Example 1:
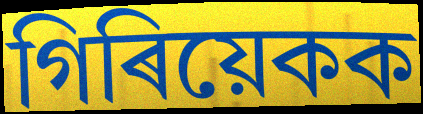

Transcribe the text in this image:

গিৰিয়েকক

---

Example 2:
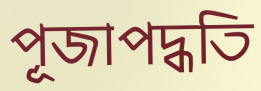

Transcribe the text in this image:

পূজাপদ্ধতি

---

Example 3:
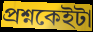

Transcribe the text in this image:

প্ৰশ্নকেইটা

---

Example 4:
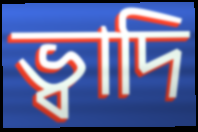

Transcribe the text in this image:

ভ্বাদি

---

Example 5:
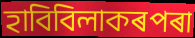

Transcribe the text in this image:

হাবিবিলাকৰপৰা